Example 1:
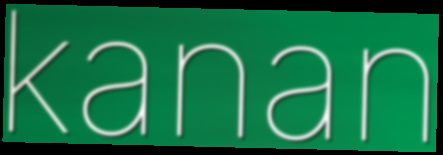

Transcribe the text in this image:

kanan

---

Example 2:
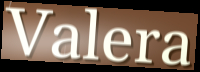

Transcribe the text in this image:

Valera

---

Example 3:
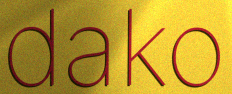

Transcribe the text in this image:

dako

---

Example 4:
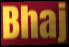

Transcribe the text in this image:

Bhaj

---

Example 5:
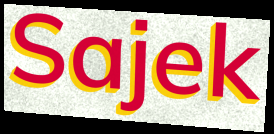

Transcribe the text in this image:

Sajek